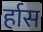
र्हास